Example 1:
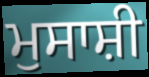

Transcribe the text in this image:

ਮੁਸਾਸ਼ੀ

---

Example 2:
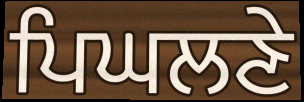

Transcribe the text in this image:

ਪਿਘਲਣੇ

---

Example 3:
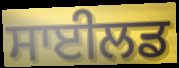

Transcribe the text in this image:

ਸਾਈਲਡ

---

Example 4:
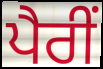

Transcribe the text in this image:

ਪੈਰੀਂ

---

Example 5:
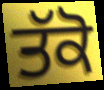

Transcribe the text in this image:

ਤੱਕੋ